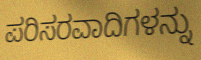
ಪರಿಸರವಾದಿಗಳನ್ನು